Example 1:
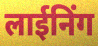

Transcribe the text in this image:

लाईनिंग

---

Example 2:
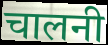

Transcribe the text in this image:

चालनी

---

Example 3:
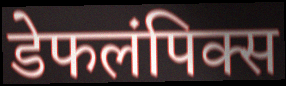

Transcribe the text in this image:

डेफलंपिक्स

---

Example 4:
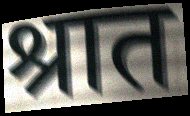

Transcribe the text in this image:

श्रात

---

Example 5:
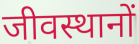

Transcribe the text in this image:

जीवस्थानों